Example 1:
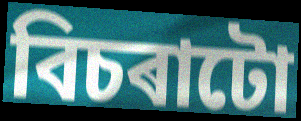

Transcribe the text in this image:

বিচৰাটো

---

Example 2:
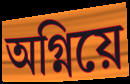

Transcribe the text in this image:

অগ্নিয়ে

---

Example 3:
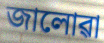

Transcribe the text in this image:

জালোৱা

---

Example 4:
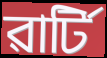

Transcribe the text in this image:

ৱাৰ্টি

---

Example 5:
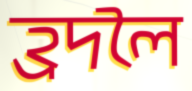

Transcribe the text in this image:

হ্ৰদলৈ